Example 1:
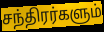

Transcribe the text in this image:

சந்திரர்களும்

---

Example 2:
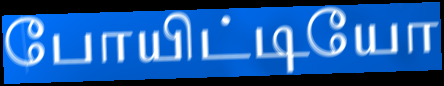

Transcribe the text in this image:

போயிட்டியோ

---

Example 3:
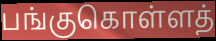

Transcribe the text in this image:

பங்குகொள்ளத்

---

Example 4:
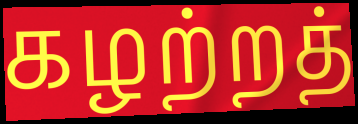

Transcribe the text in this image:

கழற்றத்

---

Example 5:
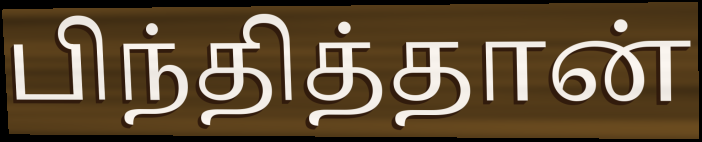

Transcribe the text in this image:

பிந்தித்தான்